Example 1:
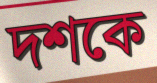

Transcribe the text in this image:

দশকে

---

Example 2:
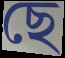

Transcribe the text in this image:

ছে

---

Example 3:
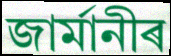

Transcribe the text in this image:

জাৰ্মানীৰ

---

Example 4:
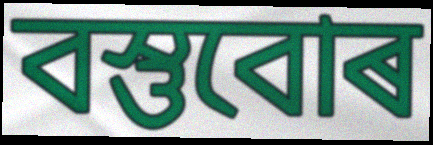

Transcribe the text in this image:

বস্তুবোৰ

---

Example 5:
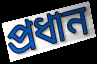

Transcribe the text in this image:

প্ৰধান